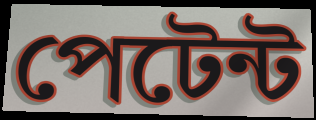
পেটেন্ট